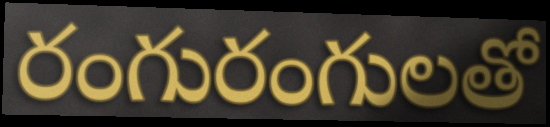
రంగురంగులతో